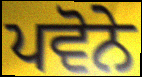
ਪਵੋਨੇ